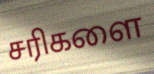
சரிகளை